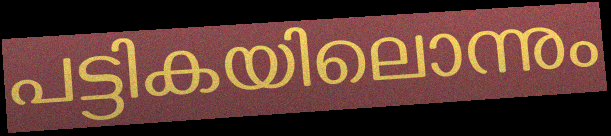
പട്ടികയിലൊന്നും